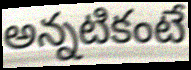
అన్నటికంటే